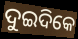
ଦୁଇଦିକେ